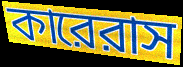
কারেরাস